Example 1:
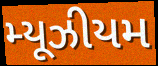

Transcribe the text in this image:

મ્યૂઝીયમ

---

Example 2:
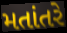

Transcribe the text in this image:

મતાંતરે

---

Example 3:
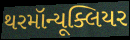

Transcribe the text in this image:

થરમૉન્યૂક્લિયર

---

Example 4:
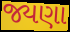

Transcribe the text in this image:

જ્યણા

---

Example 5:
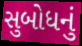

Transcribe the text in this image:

સુબોધનું